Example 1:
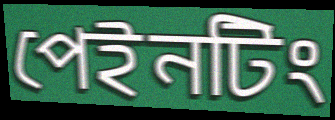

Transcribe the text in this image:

পেইনটিং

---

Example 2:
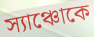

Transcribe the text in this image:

স্যাঞ্চোকে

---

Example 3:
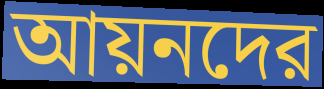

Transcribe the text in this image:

আয়নদের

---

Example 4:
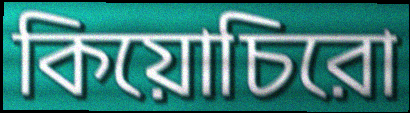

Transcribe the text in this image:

কিয়োচিরো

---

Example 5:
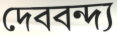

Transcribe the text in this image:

দেববন্দ্য